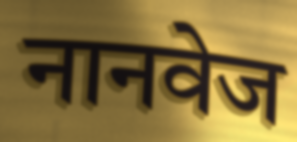
नानवेज